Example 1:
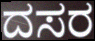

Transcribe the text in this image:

ದಸರ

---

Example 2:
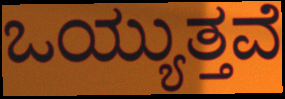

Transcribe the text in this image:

ಒಯ್ಯುತ್ತವೆ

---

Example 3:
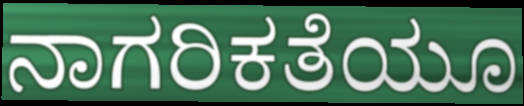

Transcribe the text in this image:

ನಾಗರಿಕತೆಯೂ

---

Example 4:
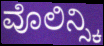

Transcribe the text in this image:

ವೊಲಿನ್ಸ್ಕಿ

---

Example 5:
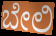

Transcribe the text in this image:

ಬೇಲಿ